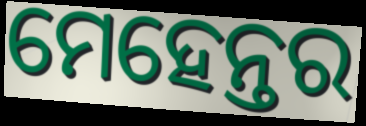
ମେହେନ୍ତର